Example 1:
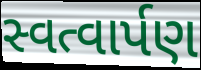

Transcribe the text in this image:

સ્વત્વાર્પણ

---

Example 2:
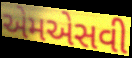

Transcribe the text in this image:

એમએસવી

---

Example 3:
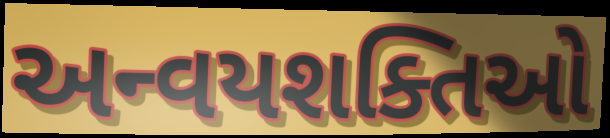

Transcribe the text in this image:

અન્વયશક્તિઓ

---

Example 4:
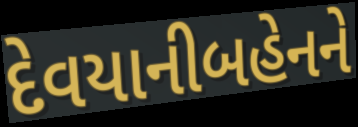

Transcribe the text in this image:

દેવયાનીબહેનને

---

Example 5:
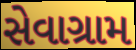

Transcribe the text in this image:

સેવાગ્રામ